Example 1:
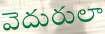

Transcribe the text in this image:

వెదురులా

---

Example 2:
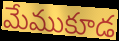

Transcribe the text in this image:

మేముకూడ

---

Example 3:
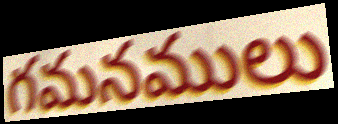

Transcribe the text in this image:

గమనములు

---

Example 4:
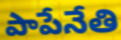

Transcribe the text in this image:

పాపేనేతి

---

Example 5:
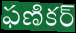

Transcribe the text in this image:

ఫణికర్